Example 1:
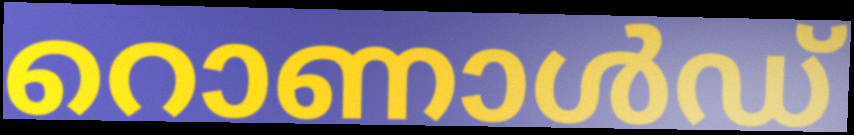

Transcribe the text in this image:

റൊണാൾഡ്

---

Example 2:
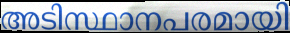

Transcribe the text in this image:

അടിസ്ഥാനപരമായി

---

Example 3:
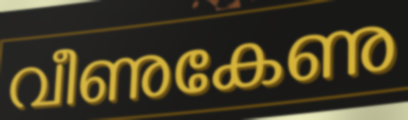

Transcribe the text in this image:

വീണുകേണു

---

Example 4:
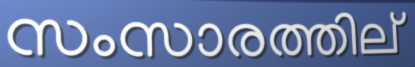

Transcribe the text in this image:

സംസാരത്തില്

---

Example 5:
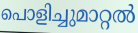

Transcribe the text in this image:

പൊളിച്ചുമാറ്റൽ